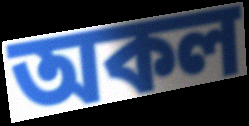
অকল